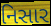
નિસાર